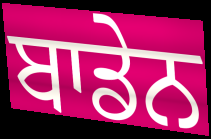
ਬਾਡੇਨ